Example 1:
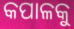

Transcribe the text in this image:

କପାଳକୁ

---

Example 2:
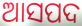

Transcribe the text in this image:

ଆସପଦ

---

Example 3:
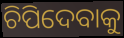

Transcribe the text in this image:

ଚିପିଦେବାକୁ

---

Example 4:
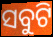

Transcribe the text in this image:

ସବୁଟି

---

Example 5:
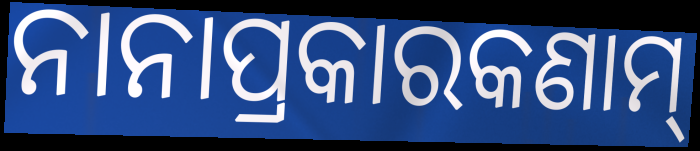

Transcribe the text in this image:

ନାନାପ୍ରକାରକଣାମ୍